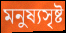
মনুষ্যসৃষ্ট